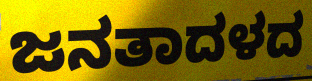
ಜನತಾದಳದ